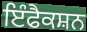
ਇੰਫੈਕਸ਼ਨ